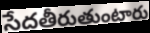
సేదతీరుతుంటారు